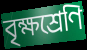
বৃক্ষশ্রেণি